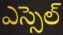
ఎస్సెల్